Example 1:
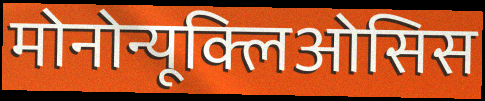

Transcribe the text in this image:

मोनोन्यूक्लिओसिस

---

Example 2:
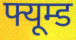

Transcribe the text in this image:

फ्यूम्ड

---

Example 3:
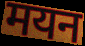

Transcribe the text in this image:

मयन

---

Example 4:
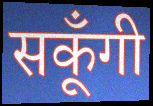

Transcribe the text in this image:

सकूँगी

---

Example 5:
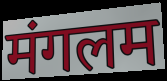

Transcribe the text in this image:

मंगलम